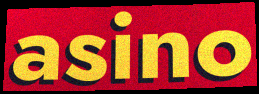
asino